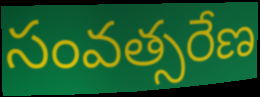
సంవత్సరేణ